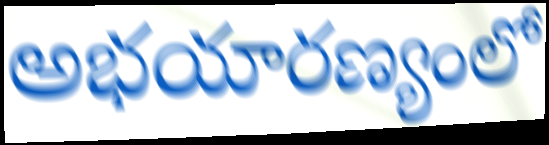
అభయారణ్యంలో